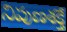
నిపుణశక్తే